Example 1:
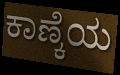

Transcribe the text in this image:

ಕಾಣ್ಕೆಯ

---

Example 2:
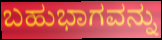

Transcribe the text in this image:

ಬಹುಭಾಗವನ್ನು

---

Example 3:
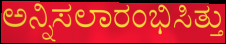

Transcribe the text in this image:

ಅನ್ನಿಸಲಾರಂಭಿಸಿತ್ತು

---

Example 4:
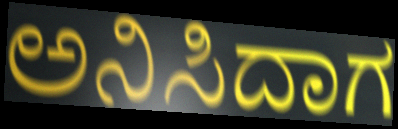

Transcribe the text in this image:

ಅನಿಸಿದಾಗ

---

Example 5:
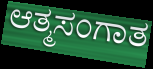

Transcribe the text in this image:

ಆತ್ಮಸಂಗಾತ